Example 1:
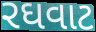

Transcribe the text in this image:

રઘવાટ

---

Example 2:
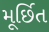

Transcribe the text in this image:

મૂર્છિત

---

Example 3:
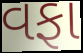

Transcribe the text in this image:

વફા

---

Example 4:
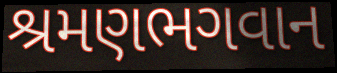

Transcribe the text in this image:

શ્રમણભગવાન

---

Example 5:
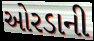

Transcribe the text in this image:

ઓરડાની